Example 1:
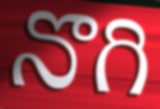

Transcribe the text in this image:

నొగి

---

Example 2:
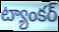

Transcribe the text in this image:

ట్యాంకర్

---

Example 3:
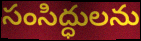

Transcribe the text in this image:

సంసిద్ధులను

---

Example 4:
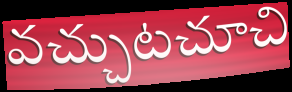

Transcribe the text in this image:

వచ్చుటచూచి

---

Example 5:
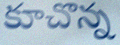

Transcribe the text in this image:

కూచొన్న